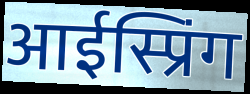
आईस्प्रिंग